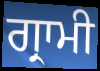
ਗ੍ਰਾਮੀ